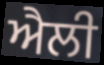
ਐਲੀ